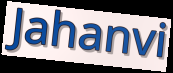
Jahanvi